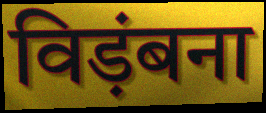
विड़ंबना